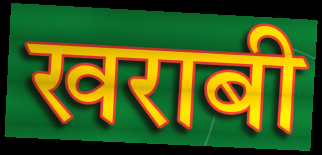
खराबी